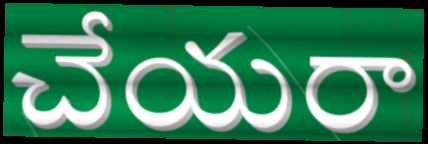
చేయరా